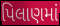
પિલાણમાં